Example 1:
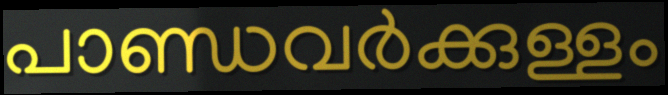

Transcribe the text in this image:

പാണ്ഡവർക്കുള്ളം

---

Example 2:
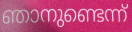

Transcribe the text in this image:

ഞാനുണ്ടെന്ന്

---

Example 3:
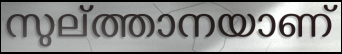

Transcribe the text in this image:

സുല്ത്താനയാണ്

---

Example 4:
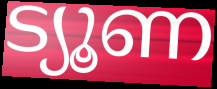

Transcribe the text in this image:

ട്യൂണ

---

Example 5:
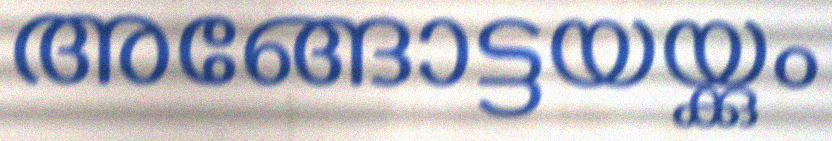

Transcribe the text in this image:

അങ്ങോട്ടയയ്ക്കും